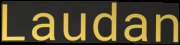
Laudan